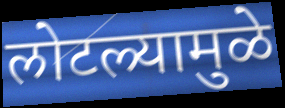
लोटल्यामुळे